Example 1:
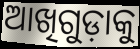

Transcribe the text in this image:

ଆଖିଗୁଡ଼ାକୁ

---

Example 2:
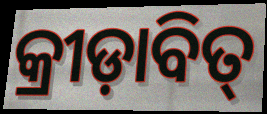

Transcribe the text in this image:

କ୍ରୀଡ଼ାବିତ୍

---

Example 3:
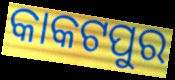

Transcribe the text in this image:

କାକଟପୁର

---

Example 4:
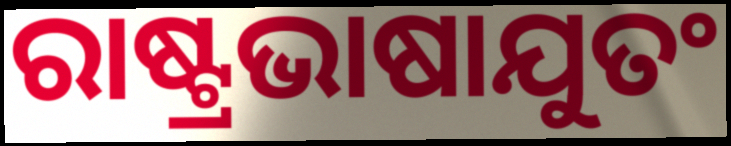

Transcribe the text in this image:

ରାଷ୍ଟ୍ରଭାଷାଯୁତଂ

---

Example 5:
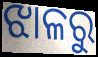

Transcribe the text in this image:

ଝାଳରୁ